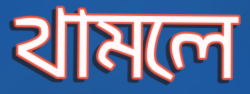
থামলে